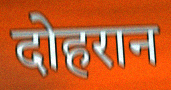
दोहरान